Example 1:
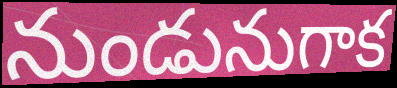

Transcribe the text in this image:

నుండునుగాక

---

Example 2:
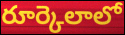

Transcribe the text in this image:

రూర్కెలాలో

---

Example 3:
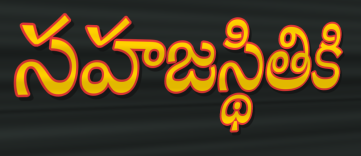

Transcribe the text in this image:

సహజస్థితికి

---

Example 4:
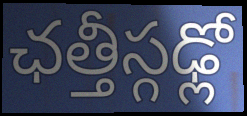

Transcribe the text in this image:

ఛత్తీస్గఢ్లో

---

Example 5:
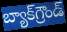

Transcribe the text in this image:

బ్యాక్‌గ్రౌండ్